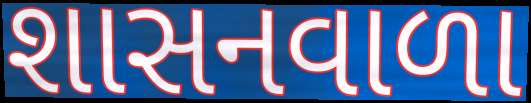
શાસનવાળા